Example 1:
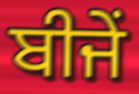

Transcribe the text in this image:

ਬੀਜੇਂ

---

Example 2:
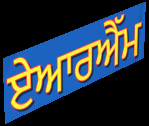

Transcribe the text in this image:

ਏਆਰਐੱਮ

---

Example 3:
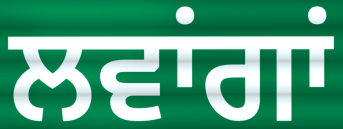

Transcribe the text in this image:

ਲਵਾਂਗਾਂ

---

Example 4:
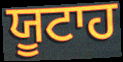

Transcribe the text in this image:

ਯੂਟਾਹ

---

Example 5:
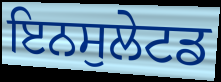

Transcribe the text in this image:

ਇਨਸੁਲੇਟਡ